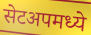
सेटअपमध्ये